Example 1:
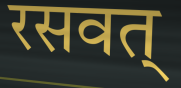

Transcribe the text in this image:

रसवत्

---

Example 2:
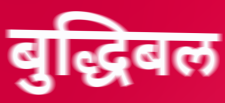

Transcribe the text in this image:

बुद्धिबल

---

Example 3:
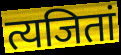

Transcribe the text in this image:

त्यजितां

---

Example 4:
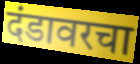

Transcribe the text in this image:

दंडावरचा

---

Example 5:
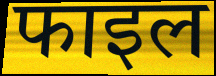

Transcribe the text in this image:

फाइल